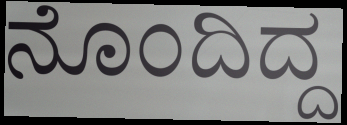
ನೊಂದಿದ್ದ